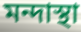
মন্দাস্থা